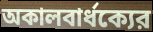
অকালবার্ধক্যের